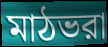
মাঠভরা